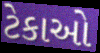
ટેકાઓ